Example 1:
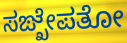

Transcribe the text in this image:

ಸಙ್ಖೇಪತೋ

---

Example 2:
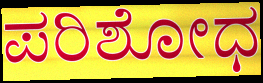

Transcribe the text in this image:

ಪರಿಶೋಧ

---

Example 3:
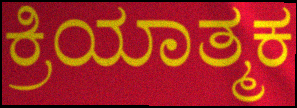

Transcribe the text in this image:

ಕ್ರಿಯಾತ್ಮಕ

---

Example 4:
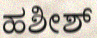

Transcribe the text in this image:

ಹಶೀಶ್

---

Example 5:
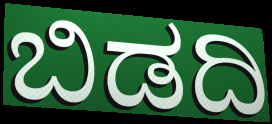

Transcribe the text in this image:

ಬಿಡದಿ